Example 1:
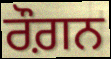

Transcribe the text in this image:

ਰੌਗ਼ਨ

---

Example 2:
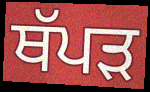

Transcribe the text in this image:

ਥੱਪੜ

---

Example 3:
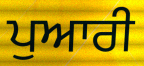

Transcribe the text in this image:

ਪੁਆਰੀ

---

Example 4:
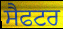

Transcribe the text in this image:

ਸੈਫਟਰ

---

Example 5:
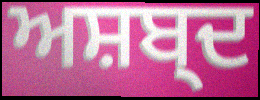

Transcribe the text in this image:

ਅਸ਼ਬ੍ਦ